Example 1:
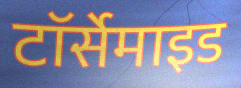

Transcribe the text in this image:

टॉर्सेमाइड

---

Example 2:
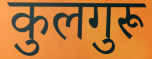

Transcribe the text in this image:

कुलगुरू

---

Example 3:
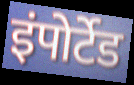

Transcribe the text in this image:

इंपोर्टेड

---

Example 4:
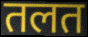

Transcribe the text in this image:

तलत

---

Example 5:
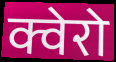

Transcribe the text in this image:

क्वेरो